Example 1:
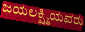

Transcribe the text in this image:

ಜಯಲಕ್ಷ್ಮಿಯವರು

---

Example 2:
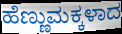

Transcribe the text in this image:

ಹೆಣ್ಣುಮಕ್ಕಳಾದ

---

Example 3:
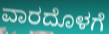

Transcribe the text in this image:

ವಾರದೊಳಗೆ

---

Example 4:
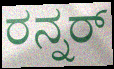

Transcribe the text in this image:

ರನ್ನರ್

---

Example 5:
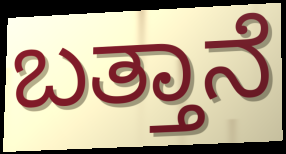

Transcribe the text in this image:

ಬತ್ತಾನೆ